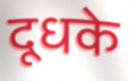
दूधके